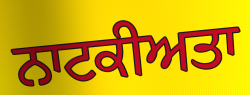
ਨਾਟਕੀਅਤਾ